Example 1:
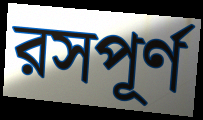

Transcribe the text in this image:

রসপূর্ণ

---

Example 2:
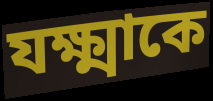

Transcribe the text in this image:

যক্ষ্মাকে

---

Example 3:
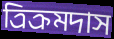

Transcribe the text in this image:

ত্রিক্রমদাস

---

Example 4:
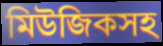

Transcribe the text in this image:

মিউজিকসহ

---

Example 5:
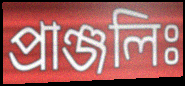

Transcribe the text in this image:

প্রাঞ্জলিঃ